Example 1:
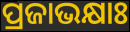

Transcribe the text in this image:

ପ୍ରଜାଭକ୍ଷାଃ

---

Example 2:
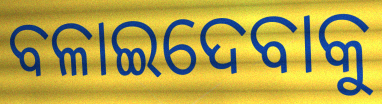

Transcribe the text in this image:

ବଳାଇଦେବାକୁ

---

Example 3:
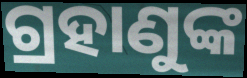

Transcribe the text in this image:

ଗ୍ରହାଣୁଙ୍କ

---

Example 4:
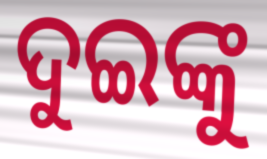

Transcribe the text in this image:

ଦୁଇଙ୍କୁ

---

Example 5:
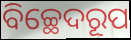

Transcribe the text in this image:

ବିଚ୍ଛେଦରୂପ